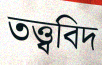
তত্ত্ববিদ